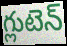
గ్లుటెన్